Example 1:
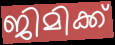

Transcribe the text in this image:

ജിമിക്ക്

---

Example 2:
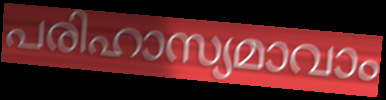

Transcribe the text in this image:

പരിഹാസ്യമാവാം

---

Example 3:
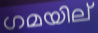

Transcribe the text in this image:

ഗമയില്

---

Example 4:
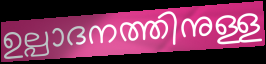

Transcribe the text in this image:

ഉല്പാദനത്തിനുള്ള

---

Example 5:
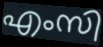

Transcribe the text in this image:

എംസി